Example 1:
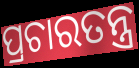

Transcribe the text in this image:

ପ୍ରଚାରତନ୍ତ୍ର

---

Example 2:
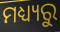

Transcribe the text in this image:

ମଧ୍ୟ୍ୟରୁ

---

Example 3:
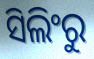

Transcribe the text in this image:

ସିଲିଂରୁ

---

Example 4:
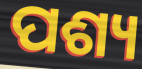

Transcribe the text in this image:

ପଶ୍ୟ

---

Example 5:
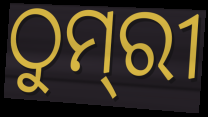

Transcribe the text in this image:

ଠୁମ୍‌ରୀ